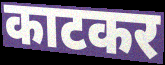
काटकर